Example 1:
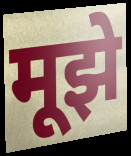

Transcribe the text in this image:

मूझे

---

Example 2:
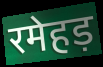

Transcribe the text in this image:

रमेहड़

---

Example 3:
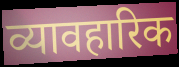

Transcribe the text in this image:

व्यावहारिक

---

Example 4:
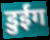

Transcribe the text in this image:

डुईंग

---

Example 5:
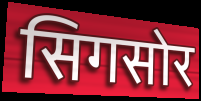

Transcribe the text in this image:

सिगसोर